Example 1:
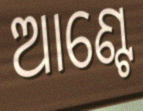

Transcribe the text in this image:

ଆଣ୍ଟେ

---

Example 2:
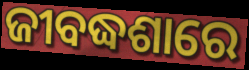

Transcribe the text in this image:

ଜୀବଦ୍ଧଶାରେ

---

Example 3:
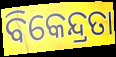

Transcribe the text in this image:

ବିକେନ୍ଦ୍ରତା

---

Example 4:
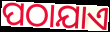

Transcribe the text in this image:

ପଠାଯାଏ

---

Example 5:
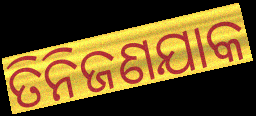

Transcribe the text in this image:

ତିନିଜଣଯାକ